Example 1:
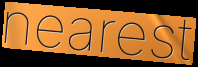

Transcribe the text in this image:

nearest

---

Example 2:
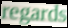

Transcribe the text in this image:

regards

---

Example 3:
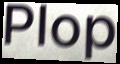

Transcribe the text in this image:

Plop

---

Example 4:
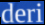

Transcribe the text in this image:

deri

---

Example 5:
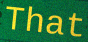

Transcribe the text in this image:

That